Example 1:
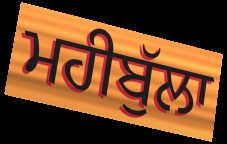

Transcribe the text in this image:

ਮਹੀਬੁੱਲਾ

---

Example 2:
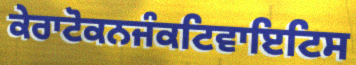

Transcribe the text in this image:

ਕੇਰਾਟੋਕਨਜੰਕਟਿਵਾਇਟਿਸ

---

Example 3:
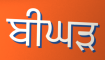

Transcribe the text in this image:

ਬੀਘੜ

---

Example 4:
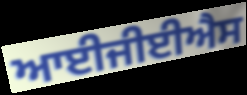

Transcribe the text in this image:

ਆਈਜੀਈਐਸ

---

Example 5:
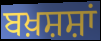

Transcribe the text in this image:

ਬਖ਼ਸ਼ਸ਼ਾਂ